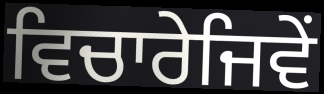
ਵਿਚਾਰੇਜਿਵੇਂ